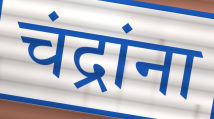
चंद्रांना